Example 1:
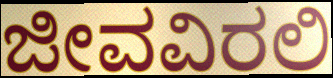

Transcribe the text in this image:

ಜೀವವಿರಲಿ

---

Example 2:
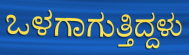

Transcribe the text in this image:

ಒಳಗಾಗುತ್ತಿದ್ದಳು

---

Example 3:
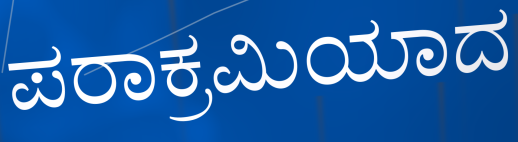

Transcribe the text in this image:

ಪರಾಕ್ರಮಿಯಾದ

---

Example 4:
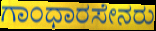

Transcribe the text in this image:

ಗಾಂಧಾರಸೇನರು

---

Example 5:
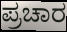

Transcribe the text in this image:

ಪ್ರಚಾರ